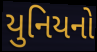
યુનિયનો